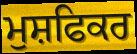
ਮੁਸ਼ਫਿਕਰ